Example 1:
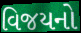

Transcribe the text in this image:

વિજયનો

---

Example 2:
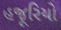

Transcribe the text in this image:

હજૂરિયો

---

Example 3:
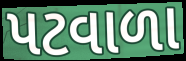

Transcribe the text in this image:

પટવાળા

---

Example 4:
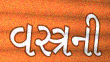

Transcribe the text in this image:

વસ્ત્રની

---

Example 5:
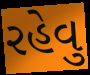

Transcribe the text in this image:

રહેવુ